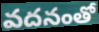
వదనంతో